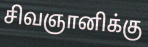
சிவஞானிக்கு